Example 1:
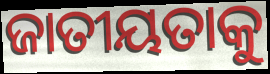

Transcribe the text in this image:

ଜାତୀୟତାକୁ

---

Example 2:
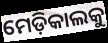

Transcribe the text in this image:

ମେଡ଼ିକାଲକୁ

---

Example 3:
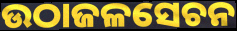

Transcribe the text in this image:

ଉଠାଜଳସେଚନ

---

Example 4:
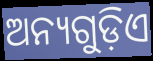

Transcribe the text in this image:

ଅନ୍ୟଗୁଡ଼ିଏ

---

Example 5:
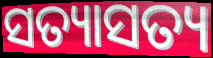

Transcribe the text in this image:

ସତ୍ୟାସତ୍ୟ